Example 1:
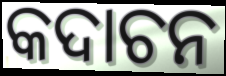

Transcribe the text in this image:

କଦାଚନ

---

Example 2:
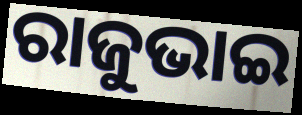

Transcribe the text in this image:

ରାଜୁଭାଇ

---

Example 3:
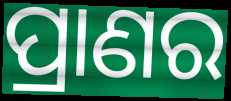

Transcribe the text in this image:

ପ୍ରାଣର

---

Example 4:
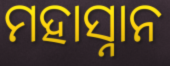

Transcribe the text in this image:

ମହାସ୍ନାନ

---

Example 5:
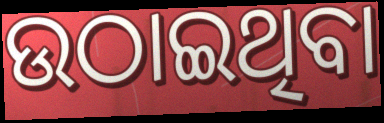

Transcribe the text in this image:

ଉଠାଇଥିବା